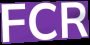
FCR